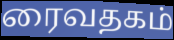
ரைவதகம்